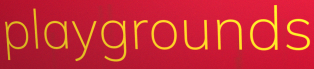
playgrounds